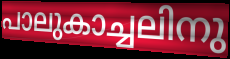
പാലുകാച്ചലിനു